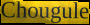
Chougule